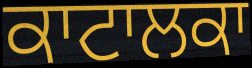
ਕਾਟਾਲਕਾ